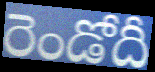
రెండోదీ